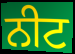
ਨੀਟ